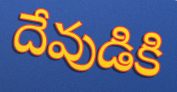
దేవుడికి